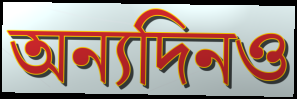
অন্যদিনও